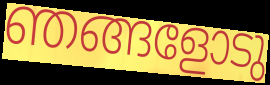
ഞങ്ങളോടു